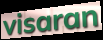
visaran